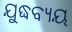
ଯୁଦ୍ଧବ୍ୟୟ